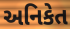
અનિકેત